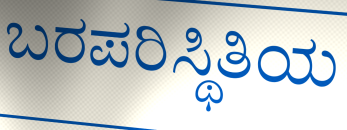
ಬರಪರಿಸ್ಥಿತಿಯ